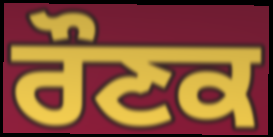
ਰੌਣਕ